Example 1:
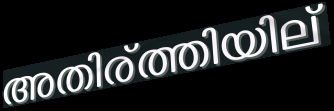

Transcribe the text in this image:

അതിര്ത്തിയില്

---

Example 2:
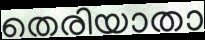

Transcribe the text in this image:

തെരിയാതാ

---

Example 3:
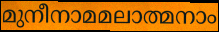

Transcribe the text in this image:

മുനീനാമമലാത്മനാം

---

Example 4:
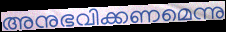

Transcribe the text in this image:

അനുഭവിക്കണമെന്നു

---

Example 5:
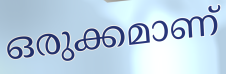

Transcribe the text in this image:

ഒരുക്കമാണ്